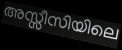
അസ്സീസിയിലെ